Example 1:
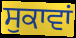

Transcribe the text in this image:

ਸੁਕਾਵਾਂ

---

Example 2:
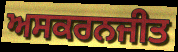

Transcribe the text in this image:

ਅਸਕਰਨਜੀਤ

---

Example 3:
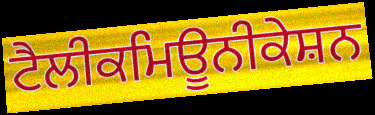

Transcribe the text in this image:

ਟੈਲੀਕਮਿਊਨੀਕੇਸ਼ਨ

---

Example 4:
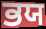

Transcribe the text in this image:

ਭਯ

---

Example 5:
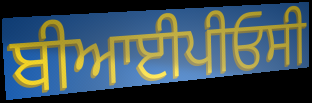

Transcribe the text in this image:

ਬੀਆਈਪੀਓਸੀ